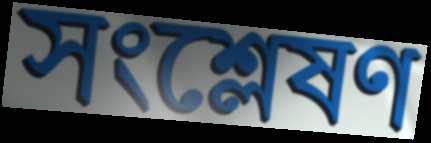
সংশ্লেষণ